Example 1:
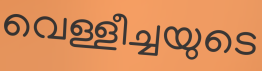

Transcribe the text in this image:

വെള്ളീച്ചയുടെ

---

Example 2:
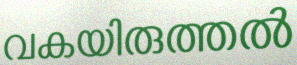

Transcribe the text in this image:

വകയിരുത്തൽ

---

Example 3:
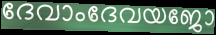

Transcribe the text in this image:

ദേവാംദേവയജോ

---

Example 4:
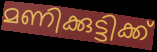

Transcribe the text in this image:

മണിക്കുട്ടിക്ക്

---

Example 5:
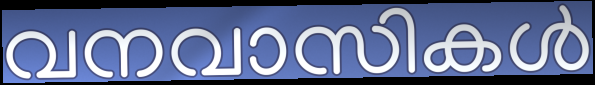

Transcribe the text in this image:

വനവാസികൾ